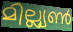
മില്ല്യൺ